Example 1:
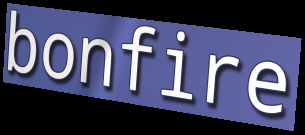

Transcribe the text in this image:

bonfire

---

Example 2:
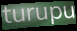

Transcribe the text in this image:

turupu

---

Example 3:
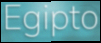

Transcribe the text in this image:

Egipto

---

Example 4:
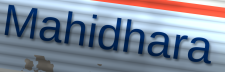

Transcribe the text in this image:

Mahidhara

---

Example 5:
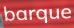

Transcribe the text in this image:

barque